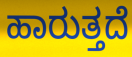
ಹಾರುತ್ತದೆ